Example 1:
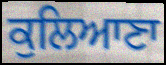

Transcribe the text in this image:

ਕੁਲਿਆਣਾ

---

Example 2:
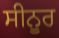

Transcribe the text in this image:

ਸੀਨੂਰ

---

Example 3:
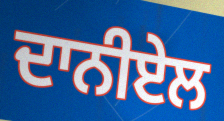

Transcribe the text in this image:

ਦਾਨੀਏਲ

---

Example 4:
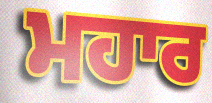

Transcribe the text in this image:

ਮਹਾਰ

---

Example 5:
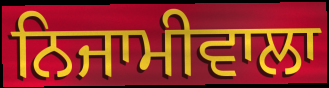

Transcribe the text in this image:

ਨਿਜਾਮੀਵਾਲਾ